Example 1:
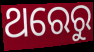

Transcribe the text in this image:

ଥରେରୁ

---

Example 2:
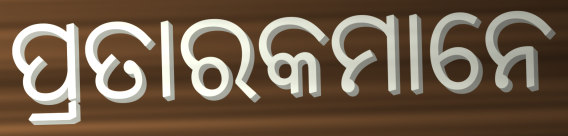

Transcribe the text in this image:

ପ୍ରତାରକମାନେ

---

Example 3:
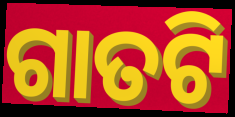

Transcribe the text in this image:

ଗାତଟି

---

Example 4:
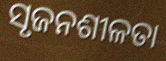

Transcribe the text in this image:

ସୃଜନଶୀଳତା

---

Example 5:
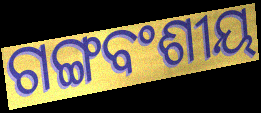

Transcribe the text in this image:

ଗଙ୍ଗବଂଶୀୟ